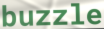
buzzle